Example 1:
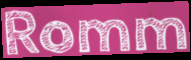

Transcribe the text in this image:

Romm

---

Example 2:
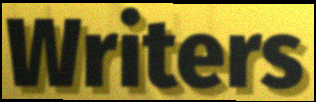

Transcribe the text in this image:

Writers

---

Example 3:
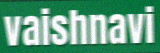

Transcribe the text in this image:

vaishnavi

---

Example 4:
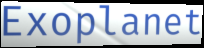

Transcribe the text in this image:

Exoplanet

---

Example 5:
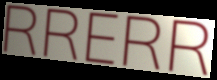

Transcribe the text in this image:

RRERR